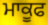
ਮਾਕੂਫ